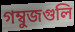
গম্বুজগুলি